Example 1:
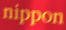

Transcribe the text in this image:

nippon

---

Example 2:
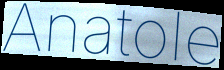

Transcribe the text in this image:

Anatole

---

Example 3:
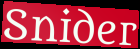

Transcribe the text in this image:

Snider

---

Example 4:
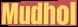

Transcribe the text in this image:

Mudhol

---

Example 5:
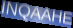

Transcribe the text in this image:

INQAAHE